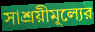
সাশ্রয়ীমূল্যের